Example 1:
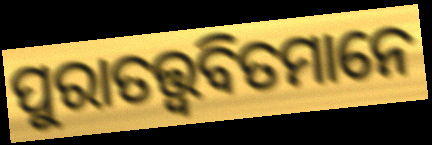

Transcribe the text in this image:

ପୁରାତତ୍ତ୍ୱବିତମାନେ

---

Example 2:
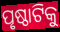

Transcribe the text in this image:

ପୃଷ୍ଠାଟିକୁ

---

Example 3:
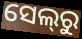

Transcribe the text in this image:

ସେଲ୍‌ରୁ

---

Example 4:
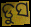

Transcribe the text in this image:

ଡୁସ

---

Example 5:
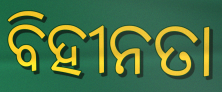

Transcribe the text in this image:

ବିହୀନତା